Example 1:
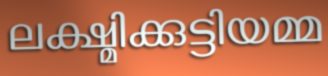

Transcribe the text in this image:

ലക്ഷ്മിക്കുട്ടിയമ്മ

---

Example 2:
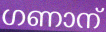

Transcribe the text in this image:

ഗണാന്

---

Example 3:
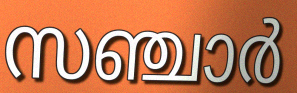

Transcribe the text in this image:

സഞ്ചാർ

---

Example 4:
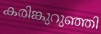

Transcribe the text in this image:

കരിങ്കുറുഞ്ഞി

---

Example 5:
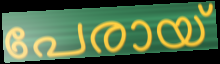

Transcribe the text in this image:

പേരായ്